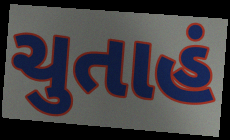
ચુતાહં